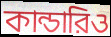
কান্ডারিও